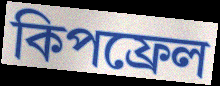
কিপফ্রেল